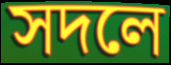
সদলে